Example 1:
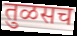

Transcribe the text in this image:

तुळसच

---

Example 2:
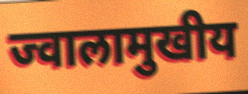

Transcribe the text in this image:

ज्वालामुखीय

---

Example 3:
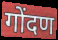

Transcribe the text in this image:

गोंदण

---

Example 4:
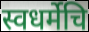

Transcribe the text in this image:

स्वधर्मेचि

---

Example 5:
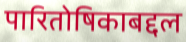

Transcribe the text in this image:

पारितोषिकाबद्दल